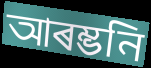
আৰম্ভনি